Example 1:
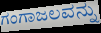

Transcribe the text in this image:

ಗಂಗಾಜಲವನ್ನು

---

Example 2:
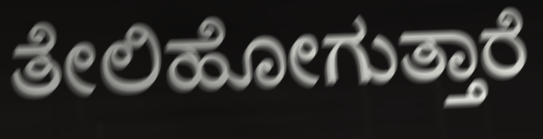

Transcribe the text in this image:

ತೇಲಿಹೋಗುತ್ತಾರೆ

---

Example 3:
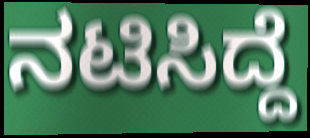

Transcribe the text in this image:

ನಟಿಸಿದ್ದೆ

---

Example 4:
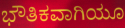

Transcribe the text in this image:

ಭೌತಿಕವಾಗಿಯೂ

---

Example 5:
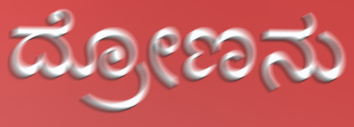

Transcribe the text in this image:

ದ್ರೋಣನು